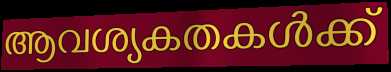
ആവശ്യകതകൾക്ക്